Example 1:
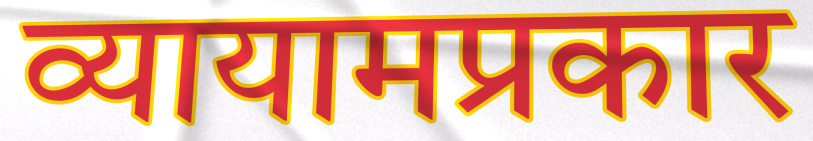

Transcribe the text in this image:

व्यायामप्रकार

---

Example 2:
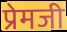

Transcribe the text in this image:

प्रेमजी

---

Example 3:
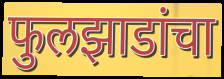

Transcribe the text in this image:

फुलझाडांचा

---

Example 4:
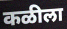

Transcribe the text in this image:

कळीला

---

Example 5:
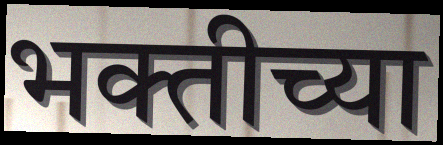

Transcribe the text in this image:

भक्‍तीच्या